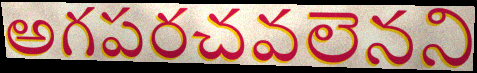
అగపరచవలెనని